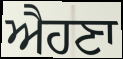
ਐਹਣਾ